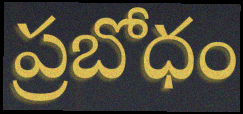
ప్రబోధం